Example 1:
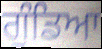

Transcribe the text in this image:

ਗੁੰਡਿਆ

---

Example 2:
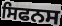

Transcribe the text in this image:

ਸਿਫਨਸ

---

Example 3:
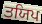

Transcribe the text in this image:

ਤਯਿਪ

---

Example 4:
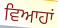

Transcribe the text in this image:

ਵਿਆਹਾਂ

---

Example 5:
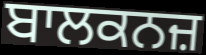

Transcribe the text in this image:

ਬਾਲਕਨਜ਼